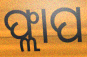
ଫ୍ଲାପ